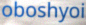
oboshyoi